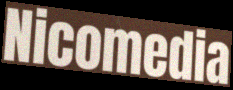
Nicomedia